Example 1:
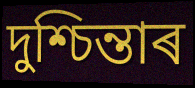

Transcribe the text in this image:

দুশ্চিন্তাৰ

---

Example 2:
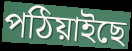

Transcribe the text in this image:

পঠিয়াইছে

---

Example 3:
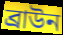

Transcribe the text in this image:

ব্ৰাউন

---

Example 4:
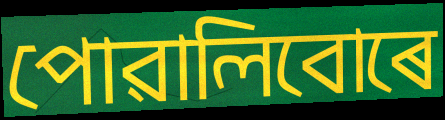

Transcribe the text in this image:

পোৱালিবোৰে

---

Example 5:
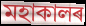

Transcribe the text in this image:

মহাকালৰ